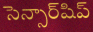
సెన్సార్‌షిప్